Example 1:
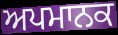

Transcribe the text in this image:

ਅਪਮਾਨਕ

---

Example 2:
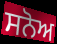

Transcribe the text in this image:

ਸਨੋਅ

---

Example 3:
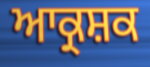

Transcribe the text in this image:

ਆਕ੍ਰਸ਼ਕ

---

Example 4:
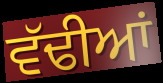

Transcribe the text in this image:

ਵੱਢੀਆਂ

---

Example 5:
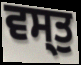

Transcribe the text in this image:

ਵਸ੍ਤੁ